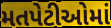
મતપેટીઓમાં